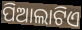
ପିଆଲାଟିଏ